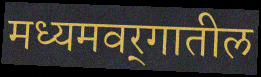
मध्यमवर्गातील